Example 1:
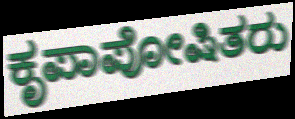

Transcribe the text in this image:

ಕೃಪಾಪೋಷಿತರು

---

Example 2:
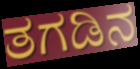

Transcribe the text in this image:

ತಗಡಿನ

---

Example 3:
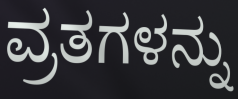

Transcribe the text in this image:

ವ್ರತಗಳನ್ನು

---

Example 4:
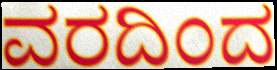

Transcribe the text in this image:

ವರದಿಂದ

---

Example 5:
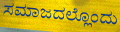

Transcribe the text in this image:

ಸಮಾಜದಲ್ಲೊಂದು